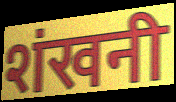
शंखनी